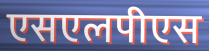
एसएलपीएस